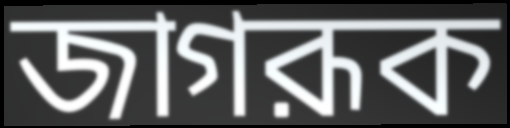
জাগরূক